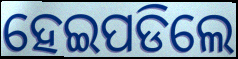
ହେଇପଡିଲେ